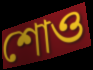
শোও